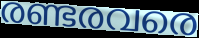
രണ്ടരവരെ